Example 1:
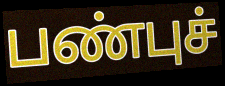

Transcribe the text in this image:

பண்புச்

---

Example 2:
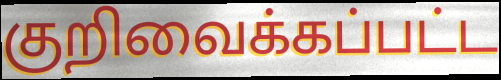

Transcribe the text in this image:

குறிவைக்கப்பட்ட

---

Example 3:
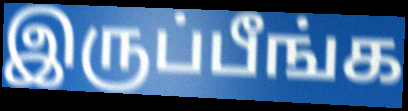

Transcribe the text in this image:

இருப்பீங்க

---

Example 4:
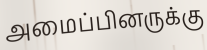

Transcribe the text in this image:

அமைப்பினருக்கு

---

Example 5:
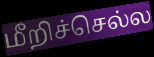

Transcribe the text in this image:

மீறிச்செல்ல